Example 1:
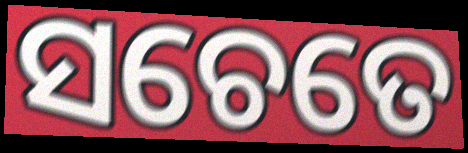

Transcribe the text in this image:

ସଚେତେ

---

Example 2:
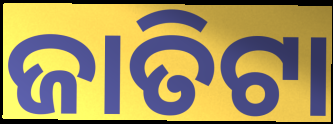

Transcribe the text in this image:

ଜାତିଟା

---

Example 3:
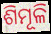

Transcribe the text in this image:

ଶିମୂଳି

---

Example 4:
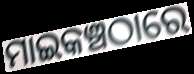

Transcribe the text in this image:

ମାଇକଞ୍ଚଠାରେ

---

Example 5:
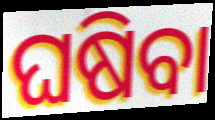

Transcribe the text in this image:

ଘଷିବା